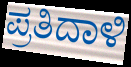
ಪ್ರತಿದಾಳಿ